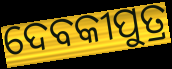
ଦେବକୀପୁତ୍ର